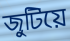
জুটিয়ে